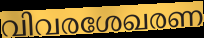
വിവരശേഖരണ